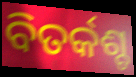
ବିତର୍କଶ୍ଚ